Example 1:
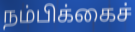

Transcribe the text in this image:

நம்பிக்கைச்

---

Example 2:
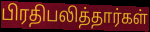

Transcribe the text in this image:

பிரதிபலித்தார்கள்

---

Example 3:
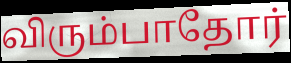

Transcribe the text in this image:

விரும்பாதோர்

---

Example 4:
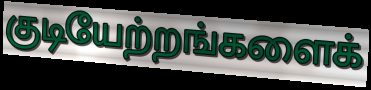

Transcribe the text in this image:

குடியேற்றங்களைக்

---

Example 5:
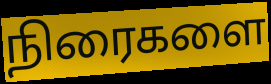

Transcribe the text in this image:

நிரைகளை